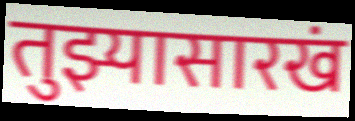
तुझ्यासारखं